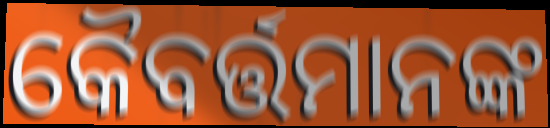
କୈବର୍ତ୍ତମାନଙ୍କ